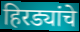
हिरड्यांचे